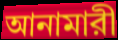
আনামারী